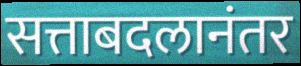
सत्ताबदलानंतर